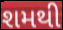
શમથી